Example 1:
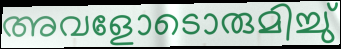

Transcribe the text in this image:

അവളോടൊരുമിച്ചു്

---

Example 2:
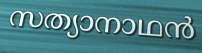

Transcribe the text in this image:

സത്യാനാഥൻ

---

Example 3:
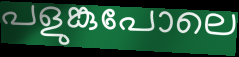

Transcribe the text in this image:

പളുങ്കുപോലെ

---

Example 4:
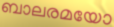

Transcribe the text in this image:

ബാലരമയോ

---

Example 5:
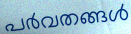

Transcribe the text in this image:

പർവതങ്ങൾ